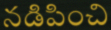
నడిపించి